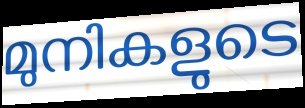
മുനികളുടെ